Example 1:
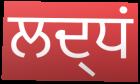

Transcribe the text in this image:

ਲਦ੍ਧਂ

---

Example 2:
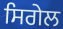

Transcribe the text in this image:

ਸਿਗੇਲ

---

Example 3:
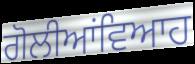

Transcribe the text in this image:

ਗੋਲੀਆਂਵਿਆਹ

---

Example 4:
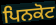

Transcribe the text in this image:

ਪਿਨਕੋਟ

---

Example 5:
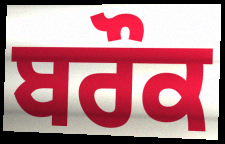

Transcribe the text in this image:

ਬਰੌਕ